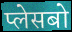
प्लेसबो